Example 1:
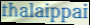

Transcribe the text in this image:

thalaippai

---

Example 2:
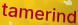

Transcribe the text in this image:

tamerind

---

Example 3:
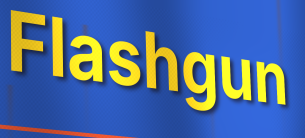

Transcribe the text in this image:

Flashgun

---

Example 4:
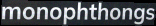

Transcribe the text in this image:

monophthongs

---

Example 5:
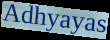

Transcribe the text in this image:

Adhyayas